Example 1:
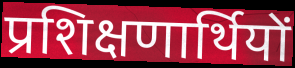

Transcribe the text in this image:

प्रशिक्षणार्थियों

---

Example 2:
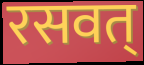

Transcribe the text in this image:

रसवत्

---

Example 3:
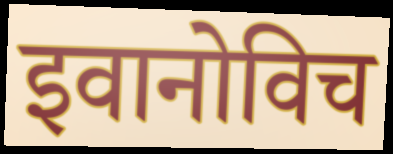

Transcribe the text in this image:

इवानोविच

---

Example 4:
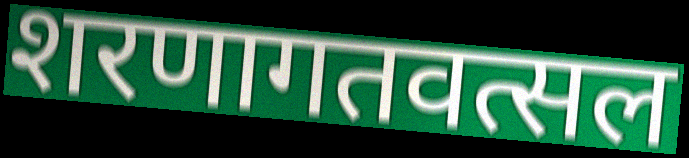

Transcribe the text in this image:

शरणागतवत्सल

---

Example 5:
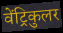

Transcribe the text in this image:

वेंट्रिकुलर